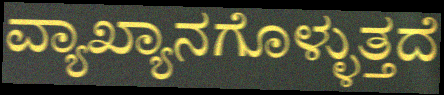
ವ್ಯಾಖ್ಯಾನಗೊಳ್ಳುತ್ತದೆ